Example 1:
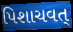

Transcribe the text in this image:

પિશાચવત્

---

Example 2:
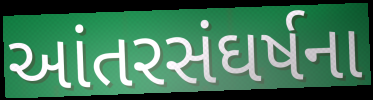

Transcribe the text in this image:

આંતરસંઘર્ષના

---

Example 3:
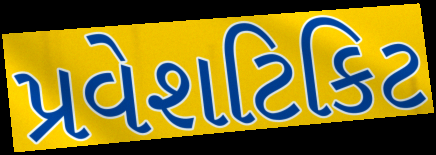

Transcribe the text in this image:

પ્રવેશટિકિટ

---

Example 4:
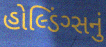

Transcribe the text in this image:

હોલ્ડિંગ્સનું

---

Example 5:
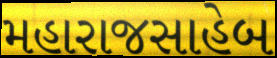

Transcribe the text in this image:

મહારાજસાહેબ